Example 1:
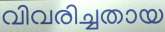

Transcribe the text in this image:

വിവരിച്ചതായ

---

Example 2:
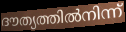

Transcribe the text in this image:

ദൗത്യത്തിൽനിന്ന്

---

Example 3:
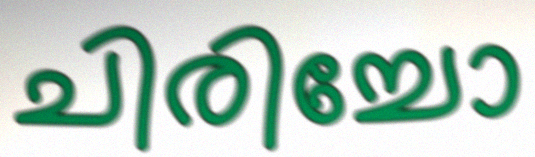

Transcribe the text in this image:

ചിരിച്ചോ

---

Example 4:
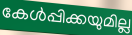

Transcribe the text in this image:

കേൾപ്പിക്കയുമില്ല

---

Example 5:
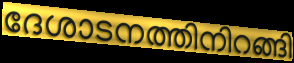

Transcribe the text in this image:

ദേശാടനത്തിനിറങ്ങി